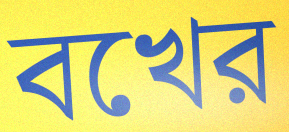
বখের